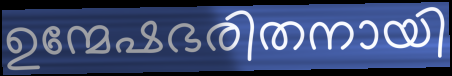
ഉന്മേഷഭരിതനായി